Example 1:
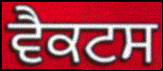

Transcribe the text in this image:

ਵੈਕਟਸ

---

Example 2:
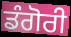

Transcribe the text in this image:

ਡੰਗੋਰੀ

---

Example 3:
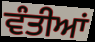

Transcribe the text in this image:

ਵੰਤੀਆਂ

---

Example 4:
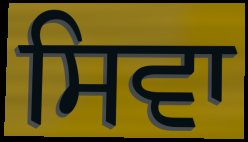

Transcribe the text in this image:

ਸਿਵਾ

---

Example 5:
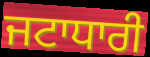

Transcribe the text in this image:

ਜਟਾਧਾਰੀ